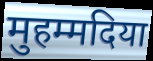
मुहम्मदिया